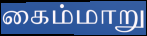
கைம்மாறு